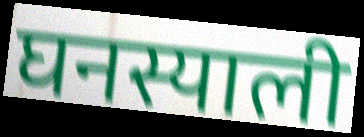
घनस्याली